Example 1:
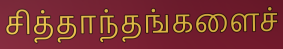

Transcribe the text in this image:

சித்தாந்தங்களைச்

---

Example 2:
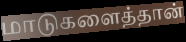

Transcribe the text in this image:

மாடுகளைத்தான்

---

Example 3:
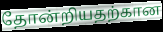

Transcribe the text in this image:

தோன்றியதற்கான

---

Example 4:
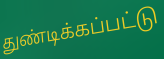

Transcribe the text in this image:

துண்டிக்கப்பட்டு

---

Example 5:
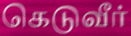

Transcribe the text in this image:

கெடுவீர்